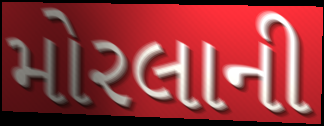
મોરલાની